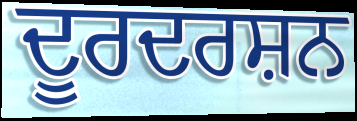
ਦੂਰਦਰਸ਼ਨ